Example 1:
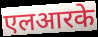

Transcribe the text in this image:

एलआरके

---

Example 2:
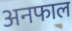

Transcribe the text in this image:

अनफाल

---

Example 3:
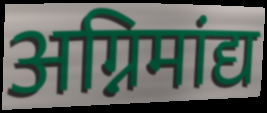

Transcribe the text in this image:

अग्निमांद्य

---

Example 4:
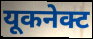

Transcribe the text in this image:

यूकनेक्ट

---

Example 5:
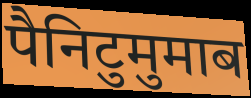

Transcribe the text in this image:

पैनिटुमुमाब